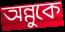
অন্নুকে